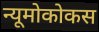
न्यूमोकोकस